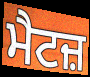
ਮੈਟਜ਼